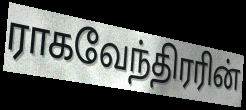
ராகவேந்திரரின்